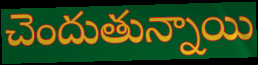
చెందుతున్నాయి